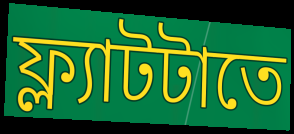
ফ্ল্যাটটাতে